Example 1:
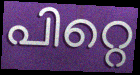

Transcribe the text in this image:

പിറ്റെ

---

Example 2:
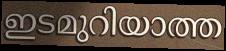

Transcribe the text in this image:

ഇടമുറിയാത്ത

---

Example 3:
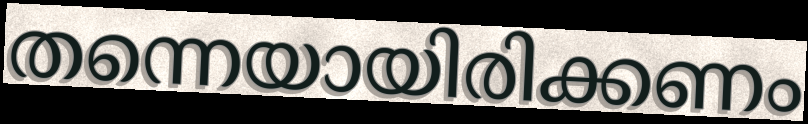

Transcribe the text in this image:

തന്നെയായിരിക്കണം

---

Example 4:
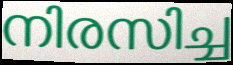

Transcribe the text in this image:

നിരസിച്ച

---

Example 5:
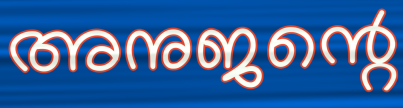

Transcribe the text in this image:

അനുജന്റെ